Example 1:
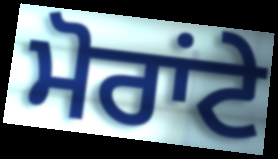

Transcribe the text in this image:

ਮੋਰਾਂਟੇ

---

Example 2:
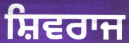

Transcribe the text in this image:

ਸ਼ਿਵਰਾਜ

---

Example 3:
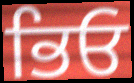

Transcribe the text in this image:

ਭਿਓ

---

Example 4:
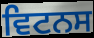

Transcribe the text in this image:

ਵਿਟਨਸ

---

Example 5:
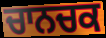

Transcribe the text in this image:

ਚਾਨਚਕ